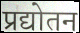
प्रद्योतन